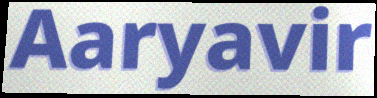
Aaryavir